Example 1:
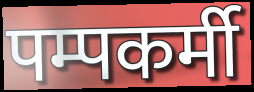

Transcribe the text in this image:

पम्पकर्मी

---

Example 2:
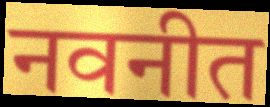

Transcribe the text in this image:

नवनीत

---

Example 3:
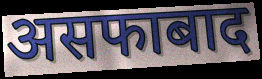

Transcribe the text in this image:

असफाबाद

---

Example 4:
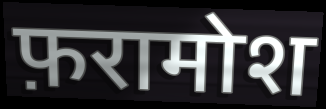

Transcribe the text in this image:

फ़रामोश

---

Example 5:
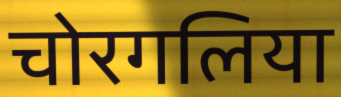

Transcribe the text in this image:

चोरगलिया